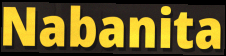
Nabanita